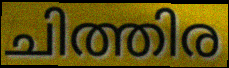
ചിത്തിര